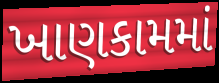
ખાણકામમાં